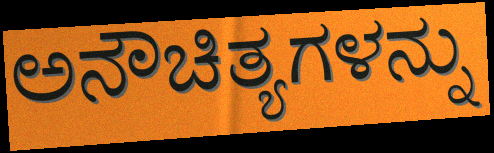
ಅನೌಚಿತ್ಯಗಳನ್ನು